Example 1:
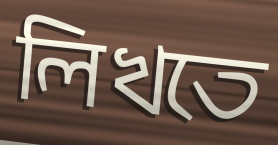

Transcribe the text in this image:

লিখতে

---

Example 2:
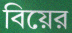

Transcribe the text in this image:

বিয়ের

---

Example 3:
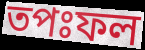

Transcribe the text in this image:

তপঃফল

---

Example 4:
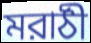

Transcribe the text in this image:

মরাঠী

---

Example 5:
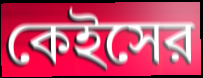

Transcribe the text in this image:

কেইসের